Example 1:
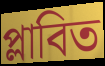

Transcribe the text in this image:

প্লাবিত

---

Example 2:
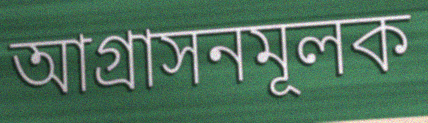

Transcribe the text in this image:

আগ্রাসনমূলক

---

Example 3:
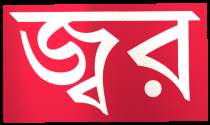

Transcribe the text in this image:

জ্বর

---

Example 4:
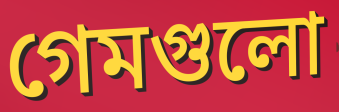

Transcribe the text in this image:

গেমগুলো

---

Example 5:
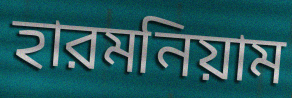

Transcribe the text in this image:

হারমনিয়াম